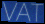
VAT